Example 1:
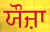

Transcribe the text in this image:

ਯੌਜ਼ਾ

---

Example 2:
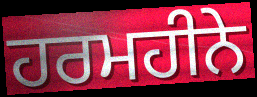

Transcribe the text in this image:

ਹਰਮਹੀਨੇ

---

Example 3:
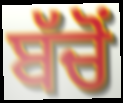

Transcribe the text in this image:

ਬੱਚੋਂ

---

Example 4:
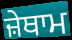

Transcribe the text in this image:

ਜ਼ੇਥਾਮ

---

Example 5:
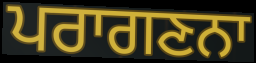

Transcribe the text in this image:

ਪਰਾਗਣਨਾ